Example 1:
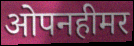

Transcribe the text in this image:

ओपनहीमर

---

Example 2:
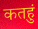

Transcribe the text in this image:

कतहुं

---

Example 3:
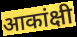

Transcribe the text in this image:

आकांक्षी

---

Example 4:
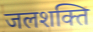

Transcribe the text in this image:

जलशक्ति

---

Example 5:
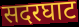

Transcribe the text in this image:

सदरघाट